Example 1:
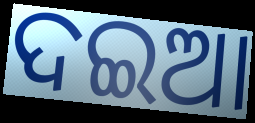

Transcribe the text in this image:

ଦଇଆ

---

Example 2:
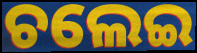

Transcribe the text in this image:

ଚଲେଇ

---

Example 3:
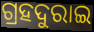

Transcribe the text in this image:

ଗ୍ରହଦୁରାଇ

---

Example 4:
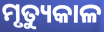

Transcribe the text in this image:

ମୃତ୍ୟୁକାଳ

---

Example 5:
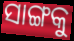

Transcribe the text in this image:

ସାଙ୍ଗକୁ